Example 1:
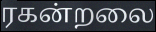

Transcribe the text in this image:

ரகன்றலை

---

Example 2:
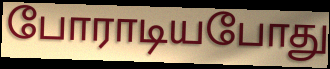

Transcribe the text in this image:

போராடியபோது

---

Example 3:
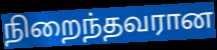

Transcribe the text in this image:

நிறைந்தவரான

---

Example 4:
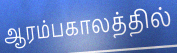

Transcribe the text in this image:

ஆரம்பகாலத்தில்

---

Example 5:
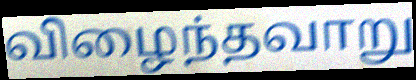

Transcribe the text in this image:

விழைந்தவாறு